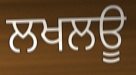
ਲਖਲਊ